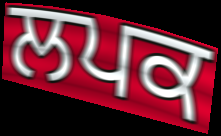
ਲਪਕ